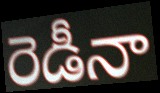
రెడీనా